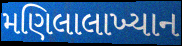
મણિલાલાખ્યાન